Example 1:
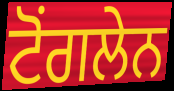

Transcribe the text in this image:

ਟੋਂਗਲੇਨ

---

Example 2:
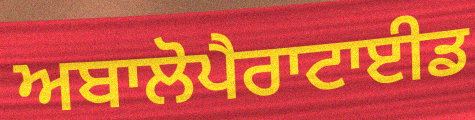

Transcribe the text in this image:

ਅਬਾਲੋਪੈਰਾਟਾਈਡ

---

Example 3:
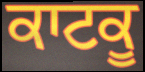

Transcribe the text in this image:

ਕਾਟਕੂ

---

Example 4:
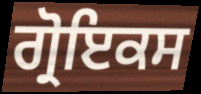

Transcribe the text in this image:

ਗ੍ਰੋਇਕਸ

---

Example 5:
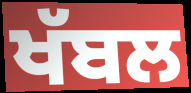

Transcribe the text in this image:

ਖੱਬਲ